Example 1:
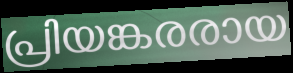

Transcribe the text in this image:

പ്രിയങ്കരരായ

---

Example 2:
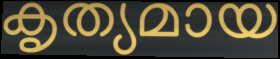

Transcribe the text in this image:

കൃത്യമായ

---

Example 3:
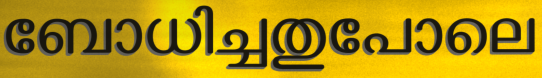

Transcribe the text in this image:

ബോധിച്ചതുപോലെ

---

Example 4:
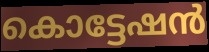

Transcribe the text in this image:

കൊട്ടേഷൻ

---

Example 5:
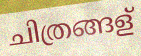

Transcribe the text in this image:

ചിത്രങ്ങള്